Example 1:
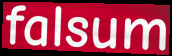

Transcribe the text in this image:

falsum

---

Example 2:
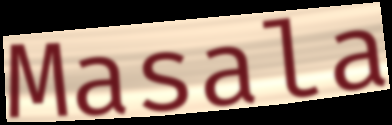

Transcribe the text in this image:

Masala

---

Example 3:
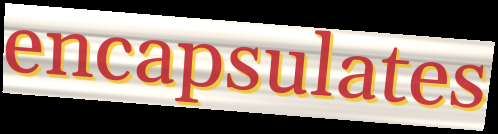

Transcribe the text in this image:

encapsulates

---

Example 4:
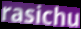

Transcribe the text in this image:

rasichu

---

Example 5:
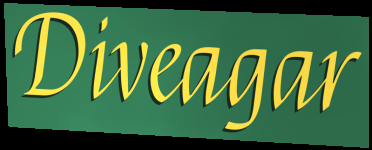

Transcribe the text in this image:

Diveagar